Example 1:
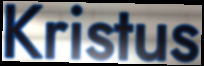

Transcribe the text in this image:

Kristus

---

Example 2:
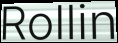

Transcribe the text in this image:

Rollin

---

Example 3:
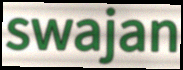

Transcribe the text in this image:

swajan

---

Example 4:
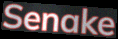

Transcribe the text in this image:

Senake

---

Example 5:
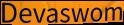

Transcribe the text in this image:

Devaswom